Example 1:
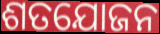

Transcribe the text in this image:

ଶତଯୋଜନ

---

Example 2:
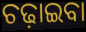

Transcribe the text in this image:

ଚଢ଼ାଇବା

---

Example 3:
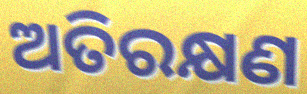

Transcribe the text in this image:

ଅତିରକ୍ଷଣ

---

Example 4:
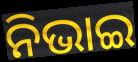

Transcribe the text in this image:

ନିଭାଇ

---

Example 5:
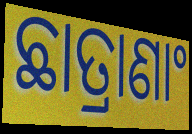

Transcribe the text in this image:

ଛାତ୍ରାଣାଂ